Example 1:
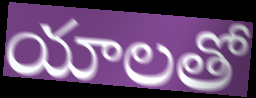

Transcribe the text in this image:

యాలతో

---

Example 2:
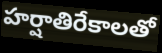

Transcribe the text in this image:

హర్షాతిరేకాలతో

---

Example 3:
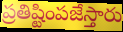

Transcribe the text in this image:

ప్రతిష్టింపజేస్తారు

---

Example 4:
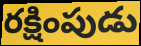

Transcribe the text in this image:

రక్షింపుడు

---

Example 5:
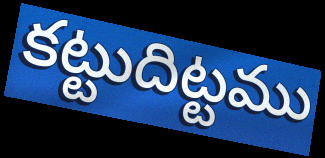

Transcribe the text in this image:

కట్టుదిట్టము